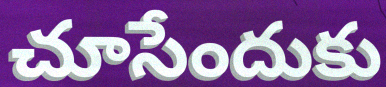
చూసేందుకు